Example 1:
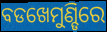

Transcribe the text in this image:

ବଡଖେମୁଣ୍ଡିରେ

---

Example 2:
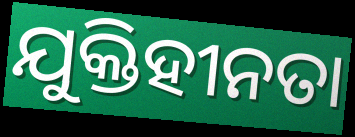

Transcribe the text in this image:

ଯୁକ୍ତିହୀନତା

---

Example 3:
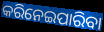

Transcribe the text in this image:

କରିନେଇପାରିବା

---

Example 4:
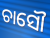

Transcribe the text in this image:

ଚାସୌ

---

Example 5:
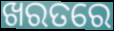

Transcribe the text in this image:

ଖରତରେ